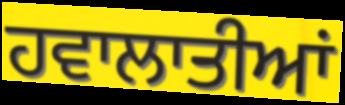
ਹਵਾਲਾਤੀਆਂ